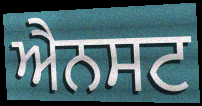
ਐਨਸਟ